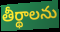
తీర్థాలను